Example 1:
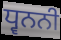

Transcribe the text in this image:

ਧ੍ਵਨਨੀ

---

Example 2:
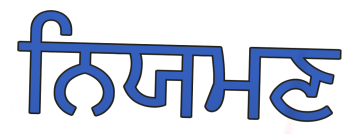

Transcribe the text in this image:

ਨਿਯਮਣ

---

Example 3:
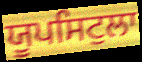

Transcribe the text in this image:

ਯੂਪਸਿਟੁਲਾ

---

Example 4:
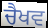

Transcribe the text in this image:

ਚੈਖਵ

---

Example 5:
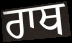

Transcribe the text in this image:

ਰਾਥ